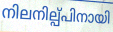
നിലനില്പ്പിനായി